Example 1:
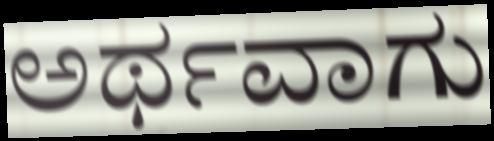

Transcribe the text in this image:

ಅರ್ಥವಾಗು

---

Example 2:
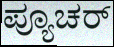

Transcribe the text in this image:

ಪ್ಯೂಚರ್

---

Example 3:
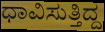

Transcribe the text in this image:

ಧಾವಿಸುತ್ತಿದ್ದ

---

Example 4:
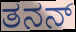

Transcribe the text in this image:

ತನನ್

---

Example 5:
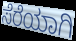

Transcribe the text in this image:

ಸೆರೆಯಾಗಿ